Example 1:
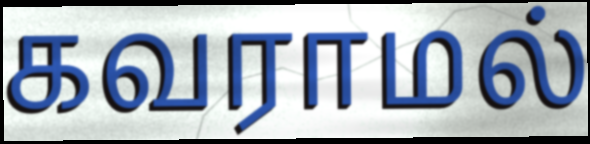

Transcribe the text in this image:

கவராமல்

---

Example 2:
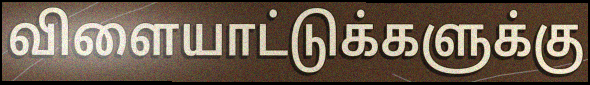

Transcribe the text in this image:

விளையாட்டுக்களுக்கு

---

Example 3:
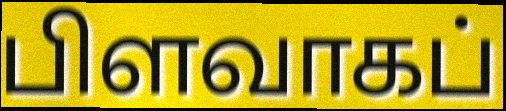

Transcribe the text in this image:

பிளவாகப்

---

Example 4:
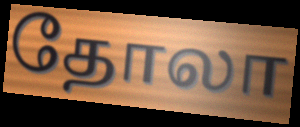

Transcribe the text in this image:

தோலா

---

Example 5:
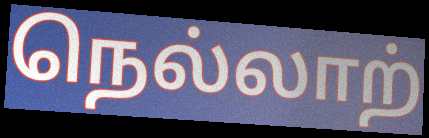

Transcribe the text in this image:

நெல்லாற்